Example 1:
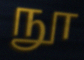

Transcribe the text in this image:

நூ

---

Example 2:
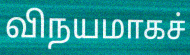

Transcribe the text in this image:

விநயமாகச்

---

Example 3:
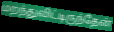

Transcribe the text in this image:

மறந்துவிட்டிருந்தேன்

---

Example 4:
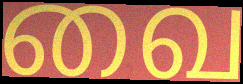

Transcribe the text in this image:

வை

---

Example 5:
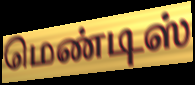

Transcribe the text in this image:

மெண்டிஸ்